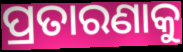
ପ୍ରତାରଣାକୁ